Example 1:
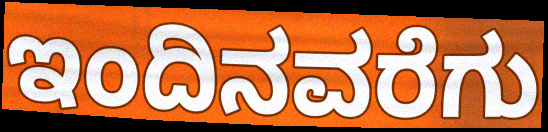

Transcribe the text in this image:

ಇಂದಿನವರೆಗು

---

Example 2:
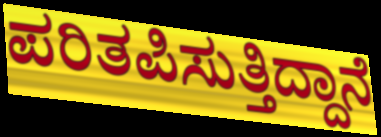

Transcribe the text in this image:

ಪರಿತಪಿಸುತ್ತಿದ್ದಾನೆ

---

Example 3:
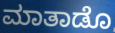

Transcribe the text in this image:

ಮಾತಾಡೊ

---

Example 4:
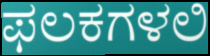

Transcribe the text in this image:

ಫಲಕಗಳಲಿ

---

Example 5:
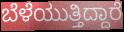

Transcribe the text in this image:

ಬೆಳೆಯುತ್ತಿದ್ದಾರೆ